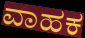
ವಾಹಕ